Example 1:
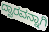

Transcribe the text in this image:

ದ್ವಾರವನ್ನಾಗಿ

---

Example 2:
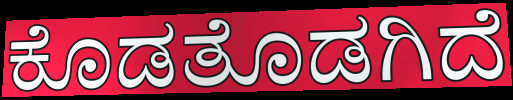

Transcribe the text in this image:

ಕೊಡತೊಡಗಿದೆ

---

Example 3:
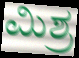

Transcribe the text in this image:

ಮಿಶ್ರ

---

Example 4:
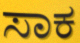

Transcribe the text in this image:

ಸಾಕ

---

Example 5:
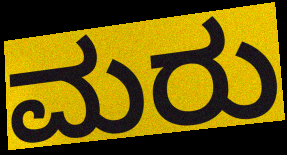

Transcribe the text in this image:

ಮರು